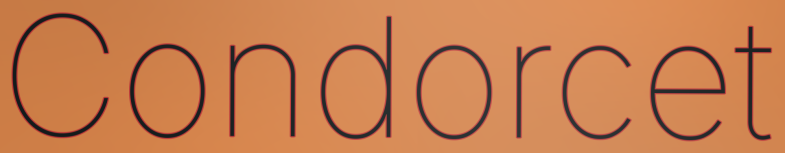
Condorcet